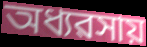
অধ্যৱসায়